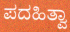
ಪದಹಿತ್ವಾ